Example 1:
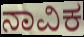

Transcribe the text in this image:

ನಾವಿಕ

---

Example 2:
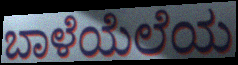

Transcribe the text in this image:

ಬಾಳೆಯೆಲೆಯ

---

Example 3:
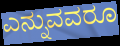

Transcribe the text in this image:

ಎನ್ನುವವರೂ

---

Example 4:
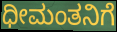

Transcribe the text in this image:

ಧೀಮಂತನಿಗೆ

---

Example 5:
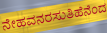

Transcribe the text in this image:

ನೇಹವನರಸುತಿಹೆನೆಂದ